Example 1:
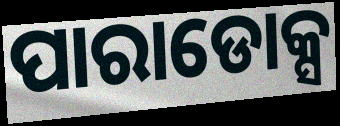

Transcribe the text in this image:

ପାରାଡୋକ୍ସ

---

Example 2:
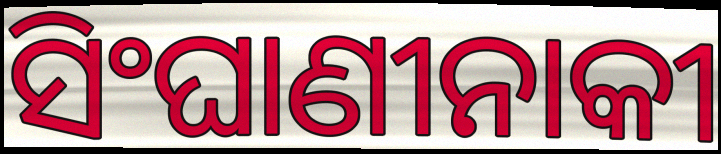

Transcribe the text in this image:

ସିଂଘାଣୀନାକୀ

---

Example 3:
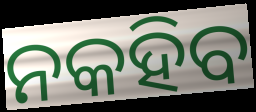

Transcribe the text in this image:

ନକହିବ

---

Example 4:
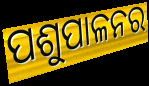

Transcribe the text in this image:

ପଶୁପାଳନର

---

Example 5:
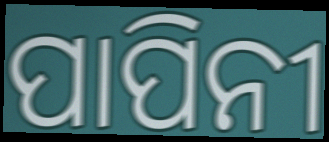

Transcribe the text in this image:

ପାପିନୀ